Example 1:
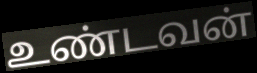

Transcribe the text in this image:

உண்டவன்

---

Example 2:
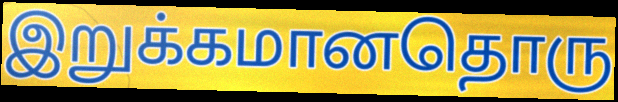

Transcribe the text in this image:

இறுக்கமானதொரு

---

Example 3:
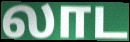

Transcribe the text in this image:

லாட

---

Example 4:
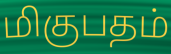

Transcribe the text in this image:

மிகுபதம்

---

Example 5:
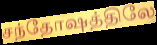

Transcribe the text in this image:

சந்தோஷத்திலே